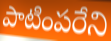
పాటింపరేని